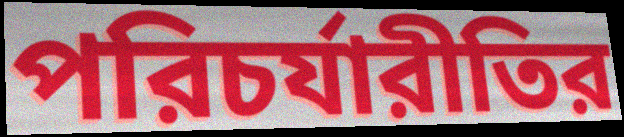
পরিচর্যারীতির